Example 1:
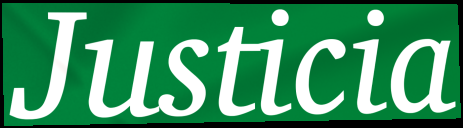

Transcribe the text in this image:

Justicia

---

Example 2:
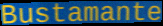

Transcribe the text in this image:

Bustamante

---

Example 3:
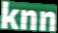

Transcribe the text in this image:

knn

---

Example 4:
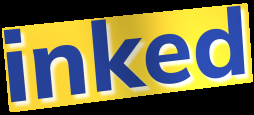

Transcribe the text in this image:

inked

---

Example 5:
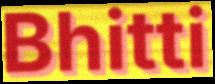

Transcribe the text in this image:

Bhitti